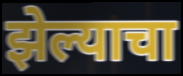
झेल्याचा